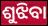
ଶୁଝିବା